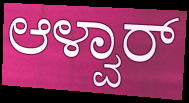
ಆಳ್ವಾರ್